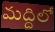
మద్దిలో